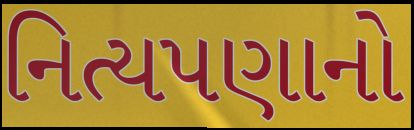
નિત્યપણાનો